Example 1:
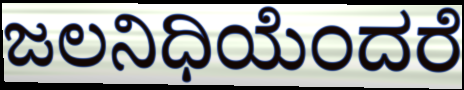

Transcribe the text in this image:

ಜಲನಿಧಿಯೆಂದರೆ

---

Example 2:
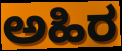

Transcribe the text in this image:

ಅಹಿರ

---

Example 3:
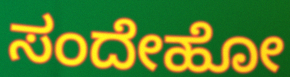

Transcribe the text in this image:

ಸಂದೇಹೋ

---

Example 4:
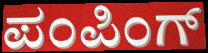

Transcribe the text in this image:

ಪಂಪಿಂಗ್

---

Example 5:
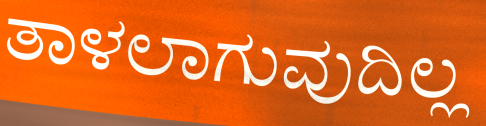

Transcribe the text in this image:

ತಾಳಲಾಗುವುದಿಲ್ಲ